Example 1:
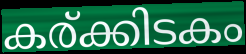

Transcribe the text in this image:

കര്ക്കിടകം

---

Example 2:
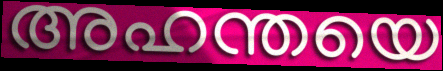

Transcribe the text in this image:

അഹന്തയെ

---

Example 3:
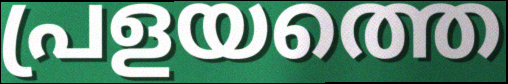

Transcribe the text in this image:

പ്രളയത്തെ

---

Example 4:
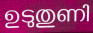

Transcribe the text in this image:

ഉടുതുണി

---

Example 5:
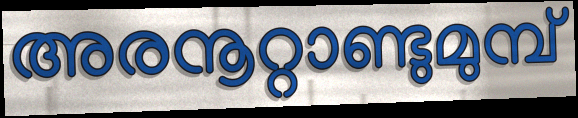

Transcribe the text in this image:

അരനൂറ്റാണ്ടുമുമ്പ്